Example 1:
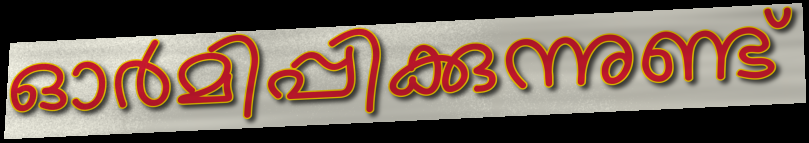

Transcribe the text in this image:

ഓർമിപ്പിക്കുന്നുണ്ട്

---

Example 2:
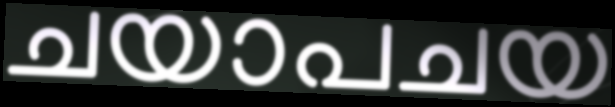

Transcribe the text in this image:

ചയാപചയ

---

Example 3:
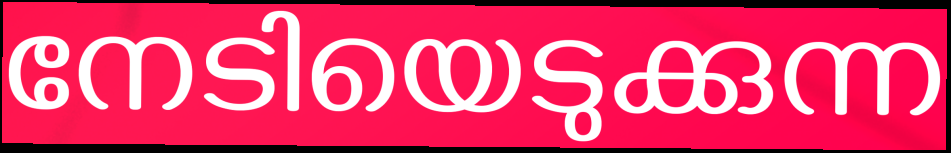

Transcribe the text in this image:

നേടിയെടുക്കുന്ന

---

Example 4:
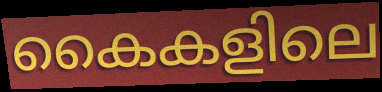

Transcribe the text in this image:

കൈകളിലെ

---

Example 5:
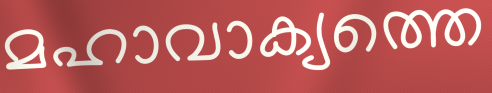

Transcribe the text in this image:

മഹാവാക്യത്തെ